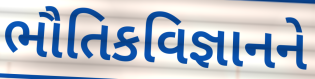
ભૌતિકવિજ્ઞાનને